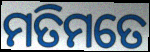
ମତିମତେ